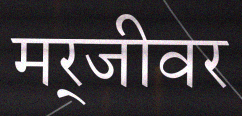
मर्जीवर